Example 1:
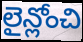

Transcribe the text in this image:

లైన్లోంచి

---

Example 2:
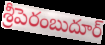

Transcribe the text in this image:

శ్రీపెరంబుదూర్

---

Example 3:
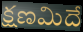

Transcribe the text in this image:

క్షణమిదే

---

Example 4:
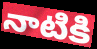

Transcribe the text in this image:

నాటికి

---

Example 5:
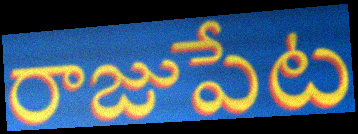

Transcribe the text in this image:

రాజుపేట